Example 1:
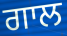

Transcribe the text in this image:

ਗਾਲ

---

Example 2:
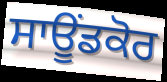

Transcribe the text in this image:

ਸਾਊਂਡਕੋਰ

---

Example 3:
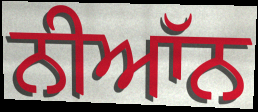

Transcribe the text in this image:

ਨੀਆੱਨ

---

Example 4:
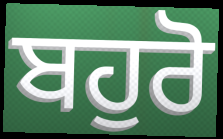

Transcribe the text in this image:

ਬਹੁਰੋ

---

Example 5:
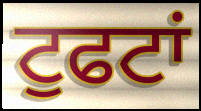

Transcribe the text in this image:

ਟੁਫਟਾਂ